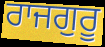
ਰਾਜਗੁਰੂ